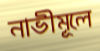
নাভীমূলে